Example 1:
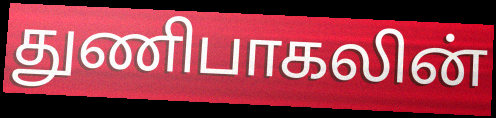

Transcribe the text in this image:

துணிபாகலின்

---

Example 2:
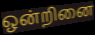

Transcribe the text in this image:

ஒன்றினை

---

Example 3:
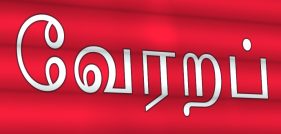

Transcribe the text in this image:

வேரறப்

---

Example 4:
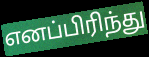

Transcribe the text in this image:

எனப்பிரிந்து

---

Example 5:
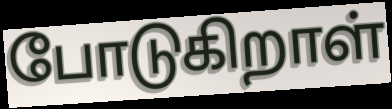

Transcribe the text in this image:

போடுகிறாள்